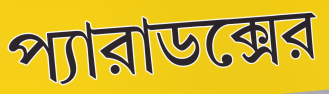
প্যারাডক্সের